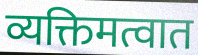
व्यक्तिमत्वात